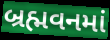
બ્રહ્મવનમાં